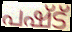
പഷ്ട്